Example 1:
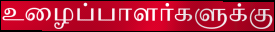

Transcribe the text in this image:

உழைப்பாளர்களுக்கு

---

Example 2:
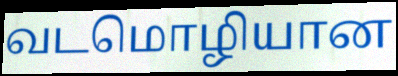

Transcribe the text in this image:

வடமொழியான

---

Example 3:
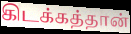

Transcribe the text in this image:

கிடக்கத்தான்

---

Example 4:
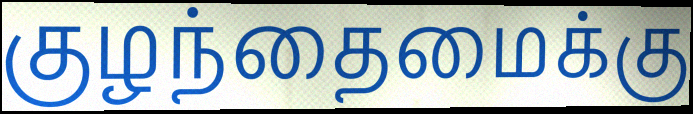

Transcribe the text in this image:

குழந்தைமைக்கு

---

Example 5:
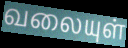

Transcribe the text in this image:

வலையுள்